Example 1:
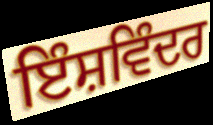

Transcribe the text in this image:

ਇੰਸ਼ਵਿੰਦਰ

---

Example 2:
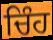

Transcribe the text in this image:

ਚਿੰਹ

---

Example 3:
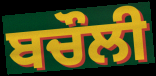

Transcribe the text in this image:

ਬਚੌਲੀ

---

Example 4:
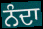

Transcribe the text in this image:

ਨੰਦਾ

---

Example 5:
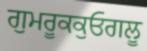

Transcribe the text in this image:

ਗੁਮਰੂਕਕੁਓਗਲੂ